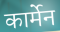
कार्मेन